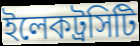
ইলেকট্রসিটি